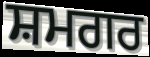
ਸ਼ਮਗਰ